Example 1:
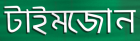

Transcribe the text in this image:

টাইমজোন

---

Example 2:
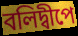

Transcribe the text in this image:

বলিদ্বীপে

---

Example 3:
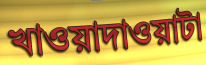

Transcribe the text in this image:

খাওয়াদাওয়াটা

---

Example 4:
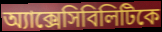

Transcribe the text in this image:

অ্যাক্সেসিবিলিটিকে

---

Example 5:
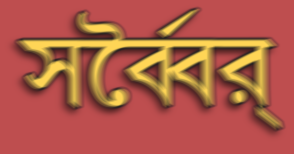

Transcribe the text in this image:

সর্ব্বৈর্